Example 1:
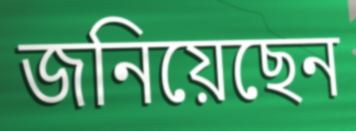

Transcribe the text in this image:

জনিয়েছেন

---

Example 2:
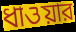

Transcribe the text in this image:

ধাওয়ার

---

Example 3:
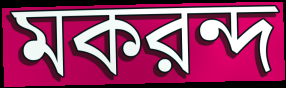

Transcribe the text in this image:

মকরন্দ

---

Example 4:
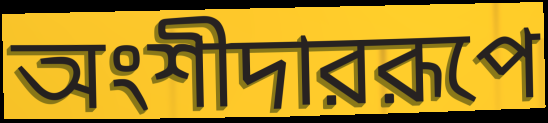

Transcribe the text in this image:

অংশীদাররূপে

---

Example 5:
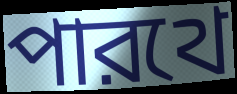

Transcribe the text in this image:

পারথে